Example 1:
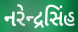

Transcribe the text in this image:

નરેન્દ્રસિંહ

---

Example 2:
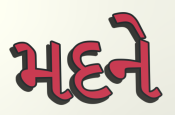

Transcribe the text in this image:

મદને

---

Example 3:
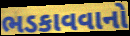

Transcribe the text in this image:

ભડકાવવાનો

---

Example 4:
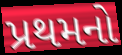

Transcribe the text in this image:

પ્રથમનો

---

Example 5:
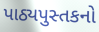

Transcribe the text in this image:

પાઠ્યપુસ્તકનો